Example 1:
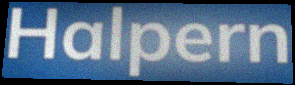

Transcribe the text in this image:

Halpern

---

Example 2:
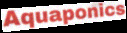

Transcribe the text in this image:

Aquaponics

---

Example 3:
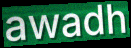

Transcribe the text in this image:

awadh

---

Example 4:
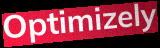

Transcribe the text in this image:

Optimizely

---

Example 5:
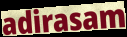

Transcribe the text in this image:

adirasam